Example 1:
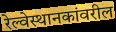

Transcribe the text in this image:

रेल्वेस्थानकांवरील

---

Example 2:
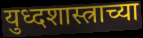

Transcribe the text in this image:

युध्दशास्त्राच्या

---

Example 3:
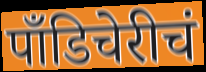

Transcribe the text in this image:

पाँडिचेरीचं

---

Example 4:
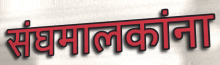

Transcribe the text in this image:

संघमालकांना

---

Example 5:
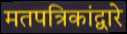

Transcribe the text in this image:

मतपत्रिकांद्वारे